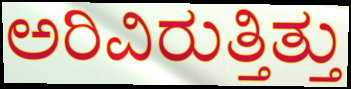
ಅರಿವಿರುತ್ತಿತ್ತು